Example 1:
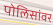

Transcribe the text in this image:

पोलिसांवर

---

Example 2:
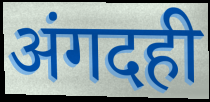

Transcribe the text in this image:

अंगदही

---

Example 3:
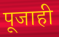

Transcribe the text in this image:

पूजाही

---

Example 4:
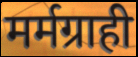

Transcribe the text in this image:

मर्मग्राही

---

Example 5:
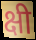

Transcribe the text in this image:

क्षी